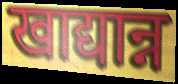
खाद्यान्न